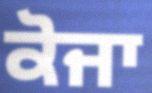
ਕੋਜਾ